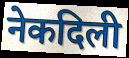
नेकदिली